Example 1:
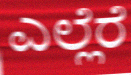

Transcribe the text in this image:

ಎಲ್ಲೆರೆ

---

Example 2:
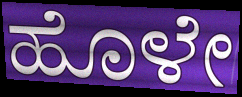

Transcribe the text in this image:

ಹೊಳೇ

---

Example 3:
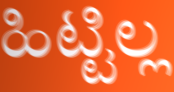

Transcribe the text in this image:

ಹಿಟ್ಟಿಲ್ಲ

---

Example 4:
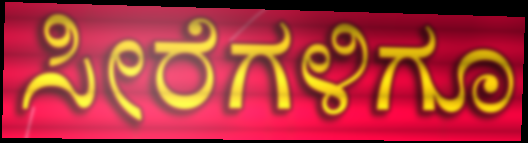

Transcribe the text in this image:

ಸೀರೆಗಳಿಗೂ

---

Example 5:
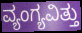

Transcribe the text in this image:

ವ್ಯಂಗ್ಯವಿತ್ತು